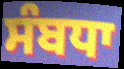
ਸੰਬਧਾ